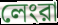
লেংরা